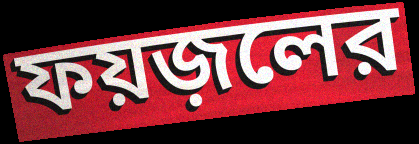
ফয়জ়লের